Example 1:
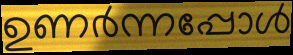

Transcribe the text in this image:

ഉണർന്നപ്പോൾ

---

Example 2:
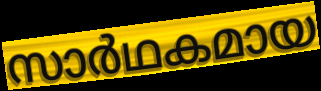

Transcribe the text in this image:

സാർഥകമായ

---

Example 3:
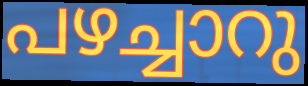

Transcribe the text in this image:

പഴച്ചാറു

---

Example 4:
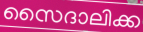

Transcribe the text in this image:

സൈദാലിക്ക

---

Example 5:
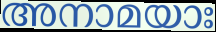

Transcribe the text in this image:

അനാമയാഃ